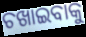
ଚଖାଇବାକୁ